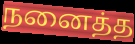
நனைத்த